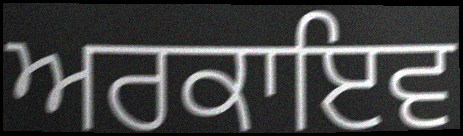
ਅਰਕਾਇਵ